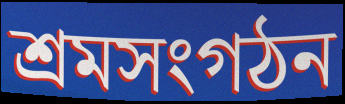
শ্রমসংগঠন